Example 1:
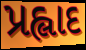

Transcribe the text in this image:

પ્રહ્લાદ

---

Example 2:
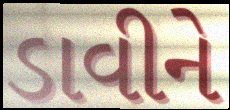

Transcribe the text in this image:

ડાવીને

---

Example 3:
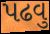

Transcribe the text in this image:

પઢવુ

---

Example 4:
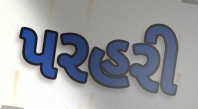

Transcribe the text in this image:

પરહરી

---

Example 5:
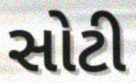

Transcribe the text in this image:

સોટી